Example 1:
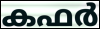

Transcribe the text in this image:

കഫർ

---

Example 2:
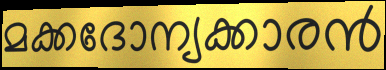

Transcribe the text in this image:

മക്കദോന്യക്കാരൻ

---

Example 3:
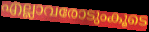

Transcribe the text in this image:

എല്ലാവരോടുംകൂടെ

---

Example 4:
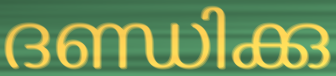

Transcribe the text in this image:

ദണ്ഡിക്കു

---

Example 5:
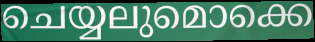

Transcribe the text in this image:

ചെയ്യലുമൊക്കെ